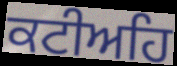
ਕਟੀਅਹਿ